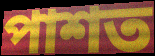
পাশত